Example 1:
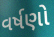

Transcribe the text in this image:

વર્ષણો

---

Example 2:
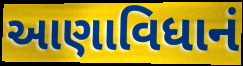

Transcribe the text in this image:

આણાવિધાનં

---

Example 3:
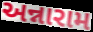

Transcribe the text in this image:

અન્નારામ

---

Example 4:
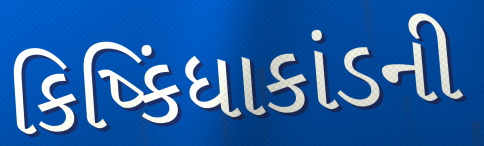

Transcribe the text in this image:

કિષ્કિંધાકાંડની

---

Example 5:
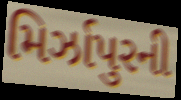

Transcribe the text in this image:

મિર્ઝાપુરની